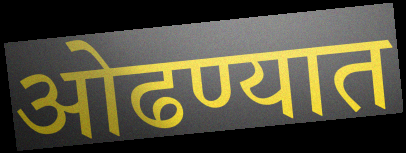
ओढण्यात